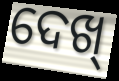
ଦେଖ୍